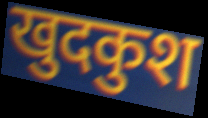
खुदकुश